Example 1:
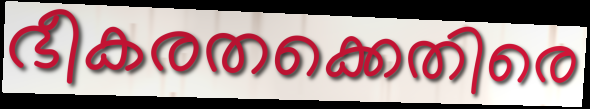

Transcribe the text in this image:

ഭീകരതക്കെതിരെ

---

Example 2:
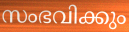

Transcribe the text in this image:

സംഭവിക്കും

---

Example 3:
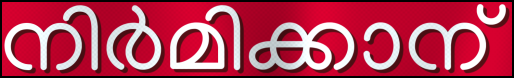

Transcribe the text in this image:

നിർമിക്കാന്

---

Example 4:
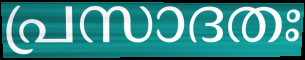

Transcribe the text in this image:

പ്രസാദതഃ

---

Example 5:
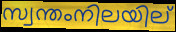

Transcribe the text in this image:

സ്വന്തംനിലയില്